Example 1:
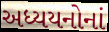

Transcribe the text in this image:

અધ્યયનોનાં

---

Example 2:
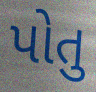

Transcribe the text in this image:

પોતુ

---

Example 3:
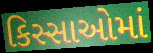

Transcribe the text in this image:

કિસ્સાઓમાં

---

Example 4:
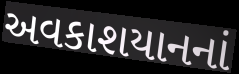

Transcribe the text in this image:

અવકાશયાનનાં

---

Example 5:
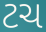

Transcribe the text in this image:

ટચ